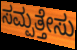
ಸಮ್ಪತ್ತೇಸು